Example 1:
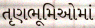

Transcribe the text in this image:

તૃણભૂમિઓમાં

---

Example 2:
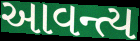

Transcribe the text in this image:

આવન્ત્ય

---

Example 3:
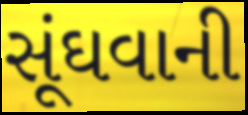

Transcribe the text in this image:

સૂંઘવાની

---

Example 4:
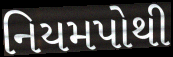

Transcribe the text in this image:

નિયમપોથી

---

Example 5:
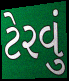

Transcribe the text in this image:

ટેરવું